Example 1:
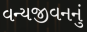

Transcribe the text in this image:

વન્યજીવનનું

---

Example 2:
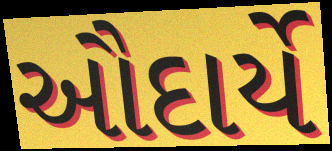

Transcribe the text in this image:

ઔદાર્યે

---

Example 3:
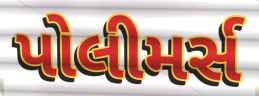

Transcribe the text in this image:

પોલીમર્સ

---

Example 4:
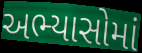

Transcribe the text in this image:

અભ્યાસોમાં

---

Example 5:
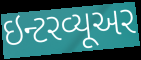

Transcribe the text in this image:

ઇન્ટરવ્યૂઅર